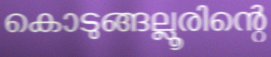
കൊടുങ്ങല്ലൂരിന്റെ